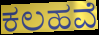
ಕಲಹವೆ